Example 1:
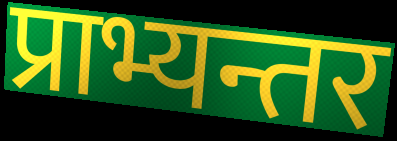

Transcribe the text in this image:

प्राभ्यन्तर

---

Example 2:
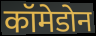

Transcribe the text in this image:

कॉमेडोन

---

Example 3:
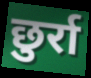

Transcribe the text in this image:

छुर्रा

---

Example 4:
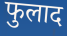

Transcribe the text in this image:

फुलाद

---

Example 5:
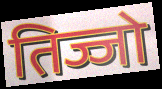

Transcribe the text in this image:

तिज्जो